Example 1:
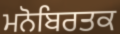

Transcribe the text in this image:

ਮਨੋਬਿਰਤਕ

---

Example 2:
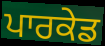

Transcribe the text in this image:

ਪਾਰਕੇਡ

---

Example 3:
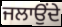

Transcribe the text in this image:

ਜਲਾਉਂਦੇ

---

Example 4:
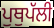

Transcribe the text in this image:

ਪੁਥੁਪੱਲੀ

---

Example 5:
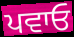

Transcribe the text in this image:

ਪਵਾਓ